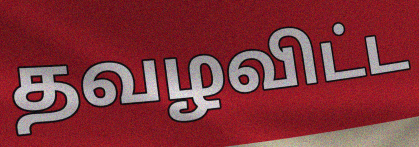
தவழவிட்ட